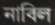
নাবিল